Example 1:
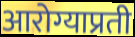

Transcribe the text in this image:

आरोग्याप्रती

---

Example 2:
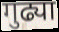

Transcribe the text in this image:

गुढ्या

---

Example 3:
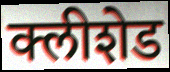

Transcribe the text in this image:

क्लीशेड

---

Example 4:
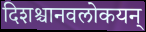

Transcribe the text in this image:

दिशश्चानवलोकयन्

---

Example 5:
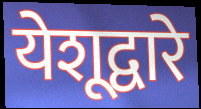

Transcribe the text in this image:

येशूद्वारे